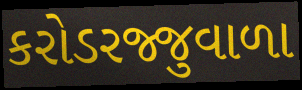
કરોડરજ્જુવાળા